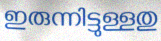
ഇരുന്നിട്ടുള്ളതു